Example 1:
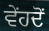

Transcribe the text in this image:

ਵੇਂਹਦੋਂ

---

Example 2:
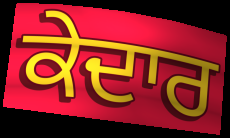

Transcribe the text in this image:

ਕੇਦਾਰ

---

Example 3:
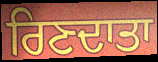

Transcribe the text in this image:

ਰਿਣਦਾਤਾ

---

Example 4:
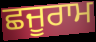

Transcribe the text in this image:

ਛਜੂਰਾਮ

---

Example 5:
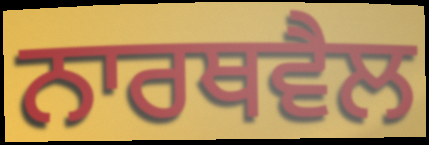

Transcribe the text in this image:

ਨਾਰਥਵੈਲ